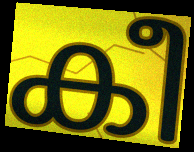
കീ